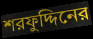
শরফুদ্দিনের